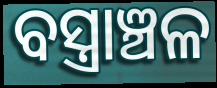
ବସ୍ତ୍ରାଞ୍ଚଳ